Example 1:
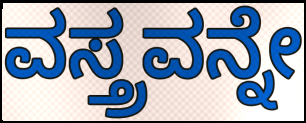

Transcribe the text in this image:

ವಸ್ತ್ರವನ್ನೇ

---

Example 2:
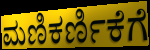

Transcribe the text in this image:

ಮಣಿಕರ್ಣಿಕೆಗೆ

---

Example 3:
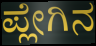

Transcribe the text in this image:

ಪ್ಲೇಗಿನ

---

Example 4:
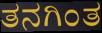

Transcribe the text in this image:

ತನಗಿಂತ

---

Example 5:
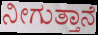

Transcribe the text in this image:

ನೀಗುತ್ತಾನೆ